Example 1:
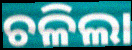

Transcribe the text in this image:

ଚଳିଲା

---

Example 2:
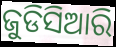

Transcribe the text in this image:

ଜୁଡିସିଆରି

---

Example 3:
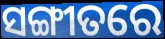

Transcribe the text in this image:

ସଙ୍ଗୀତରେ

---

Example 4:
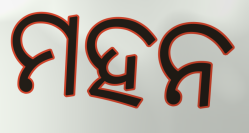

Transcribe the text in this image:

ମହନ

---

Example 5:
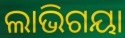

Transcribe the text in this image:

ଲାଭିଗୟା